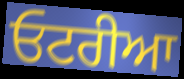
ਓਟਰੀਆ